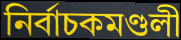
নিৰ্বাচকমণ্ডলী